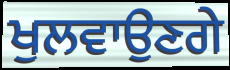
ਖੁਲਵਾਉਣਗੇ